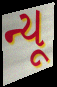
ન્યૂ